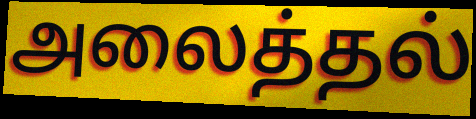
அலைத்தல்